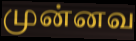
முன்னவ